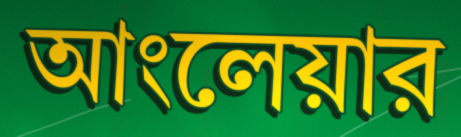
আংলেয়ার